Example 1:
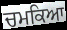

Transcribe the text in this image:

ਚਮਕਿਆ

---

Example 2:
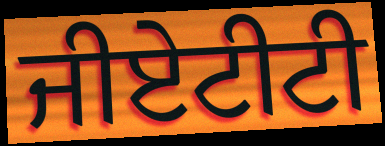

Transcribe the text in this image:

ਜੀਏਟੀਟੀ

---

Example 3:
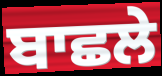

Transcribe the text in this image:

ਬਾਛਲੇ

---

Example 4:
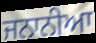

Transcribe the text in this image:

ਜਨਾਨੀਆ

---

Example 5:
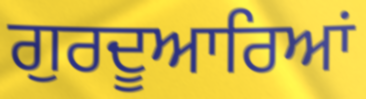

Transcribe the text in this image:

ਗੁਰਦੂਆਰਿਆਂ